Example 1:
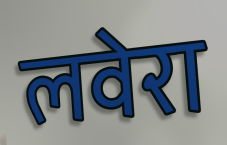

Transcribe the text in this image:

लवेरा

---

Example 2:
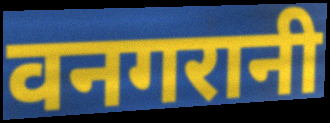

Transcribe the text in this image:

वनगरानी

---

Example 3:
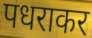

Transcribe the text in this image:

पधराकर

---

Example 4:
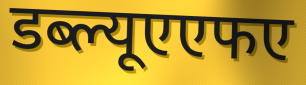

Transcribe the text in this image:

डब्ल्यूएएफए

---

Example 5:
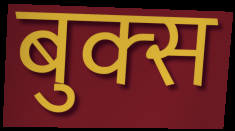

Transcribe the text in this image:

बुक्‍स